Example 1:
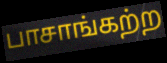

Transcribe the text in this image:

பாசாங்கற்ற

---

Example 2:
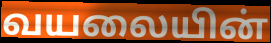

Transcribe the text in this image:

வயலையின்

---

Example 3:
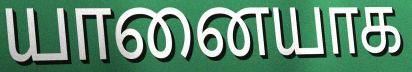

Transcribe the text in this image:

யானையாக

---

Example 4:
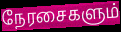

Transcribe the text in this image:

நேரசைகளும்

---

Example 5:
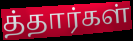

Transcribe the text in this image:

த்தார்கள்